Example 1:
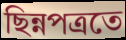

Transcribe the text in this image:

ছিন্নপত্রতে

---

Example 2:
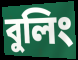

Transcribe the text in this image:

বুলিং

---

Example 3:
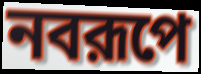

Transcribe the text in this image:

নবরূপে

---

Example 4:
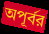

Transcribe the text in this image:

অপূর্বর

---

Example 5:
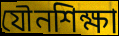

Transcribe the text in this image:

যৌনশিক্ষা